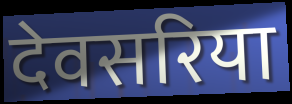
देवसरिया